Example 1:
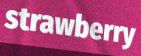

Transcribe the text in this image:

strawberry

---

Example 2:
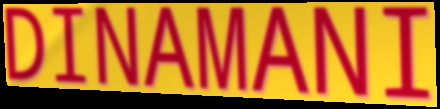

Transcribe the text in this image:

DINAMANI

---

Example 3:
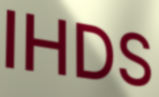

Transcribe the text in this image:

IHDS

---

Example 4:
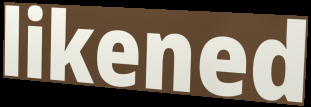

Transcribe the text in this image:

likened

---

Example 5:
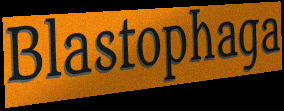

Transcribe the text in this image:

Blastophaga